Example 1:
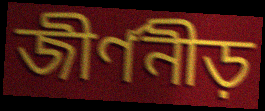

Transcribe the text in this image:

জীর্ণনীড়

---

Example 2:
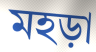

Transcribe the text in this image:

মহড়া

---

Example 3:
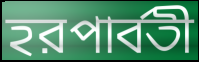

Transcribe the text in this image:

হরপার্বতী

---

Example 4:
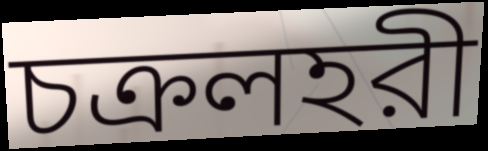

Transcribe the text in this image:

চক্রলহরী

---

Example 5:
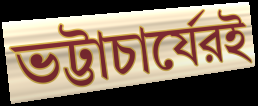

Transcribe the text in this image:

ভট্টাচার্যেরই